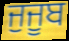
ਜੁਜੂਬ